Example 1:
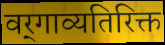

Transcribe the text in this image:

वर्गाव्यतिरिक्त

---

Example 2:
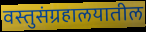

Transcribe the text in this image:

वस्तुसंग्रहालयातील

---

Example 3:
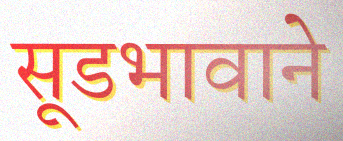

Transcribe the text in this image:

सूडभावाने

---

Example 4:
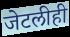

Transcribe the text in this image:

जेटलीही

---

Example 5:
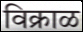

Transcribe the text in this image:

विक्राळ